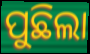
ପୁଛିଲା